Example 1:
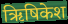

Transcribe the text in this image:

ऋिषिकेश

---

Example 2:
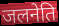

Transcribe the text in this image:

जलनेति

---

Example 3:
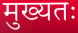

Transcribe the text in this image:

मुख्यतः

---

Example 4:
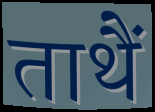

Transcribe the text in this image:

ताथैं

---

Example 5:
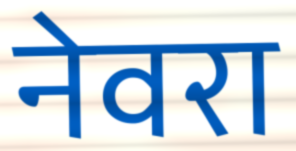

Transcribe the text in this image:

नेवरा